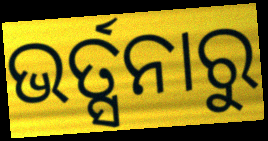
ଭର୍ତ୍ସନାରୁ